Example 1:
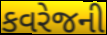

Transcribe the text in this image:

કવરેજની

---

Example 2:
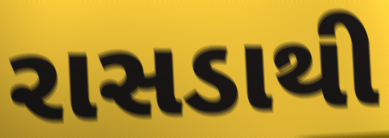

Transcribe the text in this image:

રાસડાથી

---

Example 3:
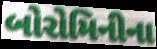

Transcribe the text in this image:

બોરોમિનીના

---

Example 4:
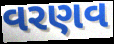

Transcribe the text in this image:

વરણવ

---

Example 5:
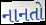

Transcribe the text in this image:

નાનતો